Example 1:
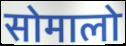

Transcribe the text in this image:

सोमालो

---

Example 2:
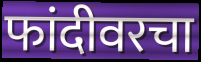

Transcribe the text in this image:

फांदीवरचा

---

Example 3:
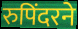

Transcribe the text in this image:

रुपिंदरने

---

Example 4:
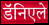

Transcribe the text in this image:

डॅनिएले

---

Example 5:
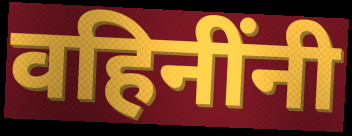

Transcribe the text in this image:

वहिनींनी